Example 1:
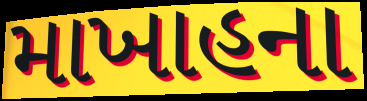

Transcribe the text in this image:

માખાહના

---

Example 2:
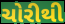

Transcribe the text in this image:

ચોરીથી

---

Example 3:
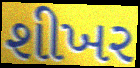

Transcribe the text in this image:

શીખર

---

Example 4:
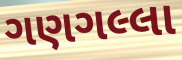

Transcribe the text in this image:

ગણગલ્લા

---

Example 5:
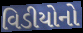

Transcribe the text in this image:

વિડીયોનો